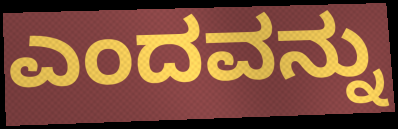
ಎಂದವನ್ನು